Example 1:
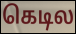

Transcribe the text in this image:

கெடில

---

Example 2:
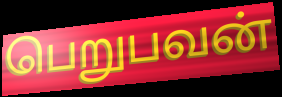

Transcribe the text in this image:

பெறுபவன்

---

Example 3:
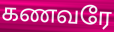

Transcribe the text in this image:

கணவரே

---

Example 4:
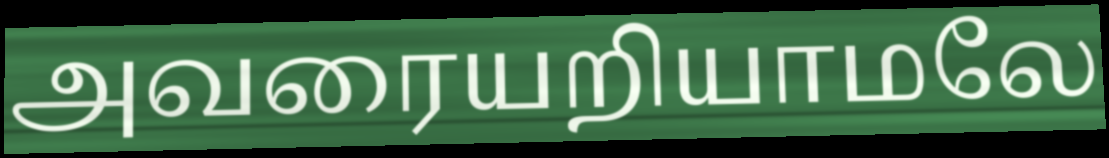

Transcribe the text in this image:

அவரையறியாமலே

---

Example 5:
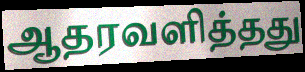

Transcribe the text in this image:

ஆதரவளித்தது